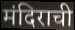
मंदिराची